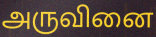
அருவினை